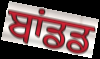
ਬਾਂਡਡ